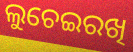
ଲୁଚେଇରଖି